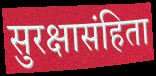
सुरक्षासंहिता